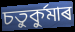
চতুৰ্কুমাৰ